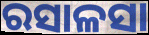
ରସାଳସା